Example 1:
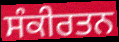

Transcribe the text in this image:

ਸੰਕੀਰਤਨ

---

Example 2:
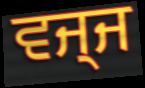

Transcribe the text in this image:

ਵਜ੍ਜ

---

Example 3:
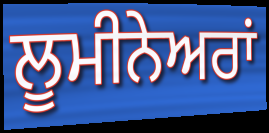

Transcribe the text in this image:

ਲੂਮੀਨੇਅਰਾਂ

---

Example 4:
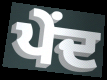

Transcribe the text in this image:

ਪੇਂਦ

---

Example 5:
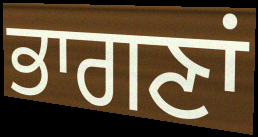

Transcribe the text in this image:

ਭਾਗਣਾਂ